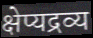
क्षेप्यद्रव्य